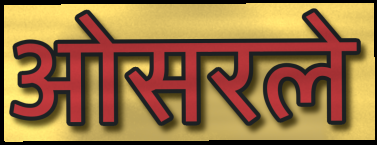
ओसरले